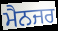
ਮੈਨਜਰ